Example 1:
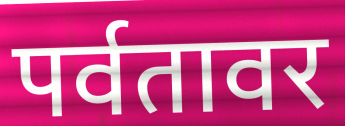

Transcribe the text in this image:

पर्वतावर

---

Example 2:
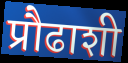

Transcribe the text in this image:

प्रौढाशी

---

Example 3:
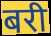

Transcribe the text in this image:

बरी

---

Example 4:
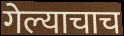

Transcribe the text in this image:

गेल्याचाच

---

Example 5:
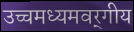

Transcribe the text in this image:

उच्चमध्यमवर्गीय